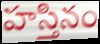
హస్తినం